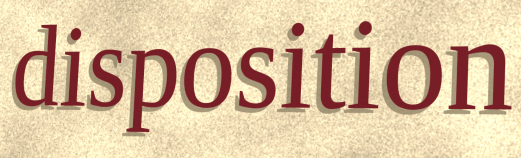
disposition